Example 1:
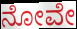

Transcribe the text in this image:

ನೋವೇ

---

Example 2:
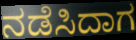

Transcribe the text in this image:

ನಡೆಸಿದಾಗ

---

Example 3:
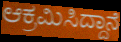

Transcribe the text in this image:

ಆಕ್ರಮಿಸಿದ್ದಾನೆ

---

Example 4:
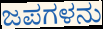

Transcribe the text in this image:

ಜಪಗಳನು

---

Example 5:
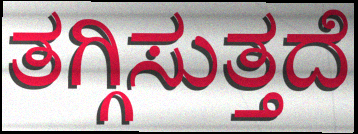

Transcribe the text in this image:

ತಗ್ಗಿಸುತ್ತದೆ